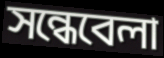
সন্ধেবেলা